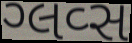
ગ્લવ્સ